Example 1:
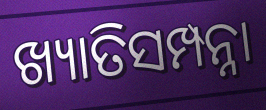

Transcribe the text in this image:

ଖ୍ୟାତିସମ୍ପନ୍ନା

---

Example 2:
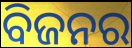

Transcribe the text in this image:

ବିଜନର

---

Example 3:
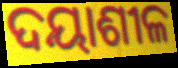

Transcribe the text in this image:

ଦୟାଶୀଳ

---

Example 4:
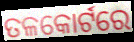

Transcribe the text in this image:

ତଳକୋର୍ଟରେ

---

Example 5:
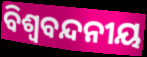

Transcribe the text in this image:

ବିଶ୍ୱବନ୍ଦନୀୟ